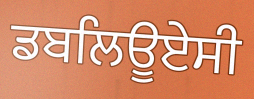
ਡਬਲਿਊਏਸੀ